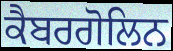
ਕੈਬਰਗੋਲਿਨ